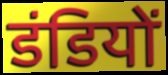
डंडियों